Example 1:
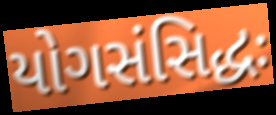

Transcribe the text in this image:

યોગસંસિદ્ધઃ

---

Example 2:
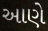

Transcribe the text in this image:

આણે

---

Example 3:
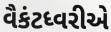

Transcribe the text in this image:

વૈકંટધ્વરીએ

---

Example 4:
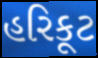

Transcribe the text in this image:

હરિકૂટ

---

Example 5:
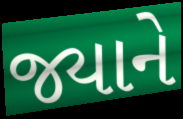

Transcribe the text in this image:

જ્યાને